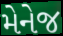
મેનેજ